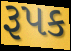
રૂપક